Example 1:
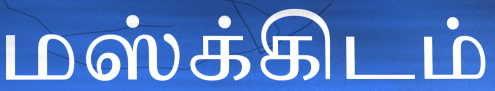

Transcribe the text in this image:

மஸ்க்கிடம்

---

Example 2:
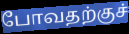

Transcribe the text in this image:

போவதற்குச்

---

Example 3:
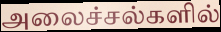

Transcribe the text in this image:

அலைச்சல்களில்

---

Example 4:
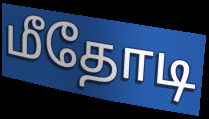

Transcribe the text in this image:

மீதோடி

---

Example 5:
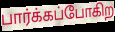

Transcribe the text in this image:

பார்க்கப்போகிற